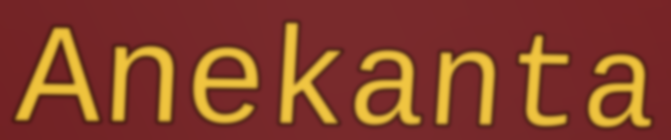
Anekanta